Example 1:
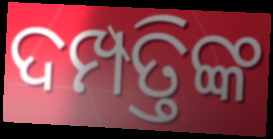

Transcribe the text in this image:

ଦମ୍ପତ୍ତିଙ୍କ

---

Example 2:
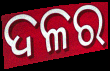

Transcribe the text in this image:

ଦଳର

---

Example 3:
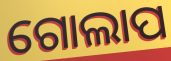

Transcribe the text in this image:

ଗୋଲାପ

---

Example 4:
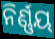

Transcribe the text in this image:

ନିର୍ଣ୍ଣୟ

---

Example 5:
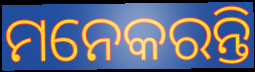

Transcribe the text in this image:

ମନେକରନ୍ତି